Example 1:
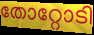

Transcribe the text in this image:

തോറ്റോടി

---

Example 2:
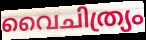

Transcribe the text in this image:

വൈചിത്ര്യം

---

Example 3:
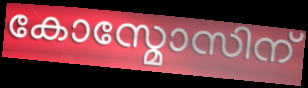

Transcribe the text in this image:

കോസ്മോസിന്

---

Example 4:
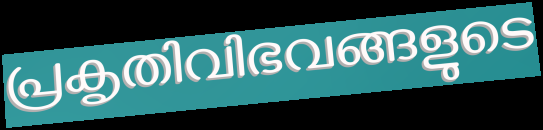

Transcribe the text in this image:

പ്രകൃതിവിഭവങ്ങളുടെ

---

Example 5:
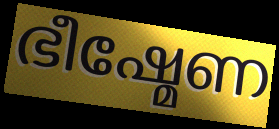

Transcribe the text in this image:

ഭീഷ്മേണ